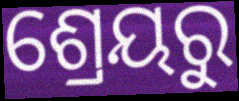
ଶ୍ରେୟରୁ